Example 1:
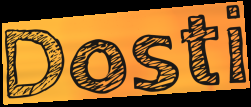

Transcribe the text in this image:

Dosti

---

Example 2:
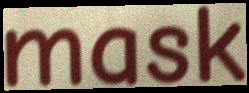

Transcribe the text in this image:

mask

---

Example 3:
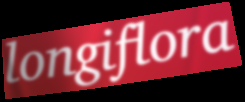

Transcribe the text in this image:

longiflora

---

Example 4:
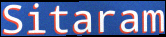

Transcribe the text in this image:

Sitaram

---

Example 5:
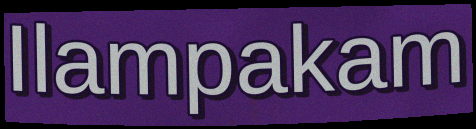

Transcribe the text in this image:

Ilampakam